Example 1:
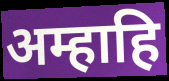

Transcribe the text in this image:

अम्हाहि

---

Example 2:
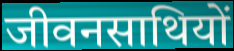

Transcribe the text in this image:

जीवनसाथियों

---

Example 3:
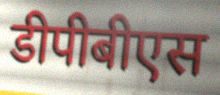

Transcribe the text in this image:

डीपीबीएस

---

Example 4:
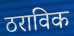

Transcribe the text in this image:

ठराविक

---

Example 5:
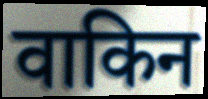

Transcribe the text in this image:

वाकिन